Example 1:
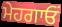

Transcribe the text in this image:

ਮੇਹਗਾਓਂ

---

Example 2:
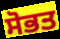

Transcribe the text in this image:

ਸੋਭਤ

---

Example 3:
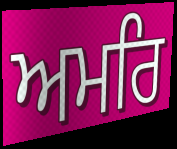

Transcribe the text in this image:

ਅਮਰਿ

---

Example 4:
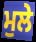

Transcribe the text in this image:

ਮੁਲੇ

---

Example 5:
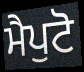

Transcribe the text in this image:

ਮੈਪੁਟੋ